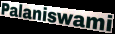
Palaniswami